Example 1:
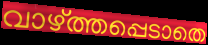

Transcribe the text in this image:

വാഴ്ത്തപ്പെടാതെ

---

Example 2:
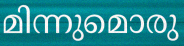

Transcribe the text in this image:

മിന്നുമൊരു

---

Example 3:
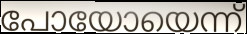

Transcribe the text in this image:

പോയോയെന്ന്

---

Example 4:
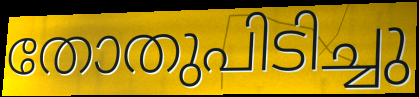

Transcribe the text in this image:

തോതുപിടിച്ചു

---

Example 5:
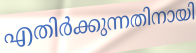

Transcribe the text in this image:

എതിർക്കുന്നതിനായി